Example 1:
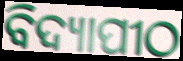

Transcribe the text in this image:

ବିଦ୍ୟାପୀଠ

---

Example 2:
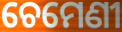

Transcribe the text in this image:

ଚେମେଣୀ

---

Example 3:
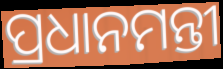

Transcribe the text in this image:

ପ୍ରଧାନମନ୍ତୀ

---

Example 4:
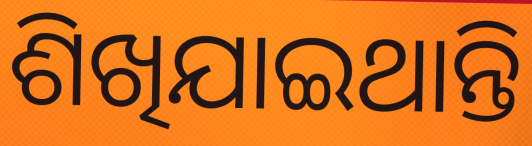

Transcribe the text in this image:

ଶିଖିଯାଇଥାନ୍ତି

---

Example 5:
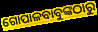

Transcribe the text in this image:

ଗୋପାଳବାବୁଙ୍କଠାରୁ